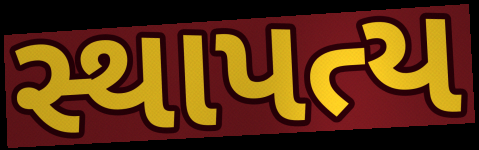
સ્થાપત્ય